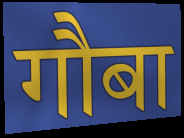
गौबा